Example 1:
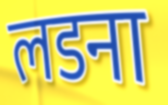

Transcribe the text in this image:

लडना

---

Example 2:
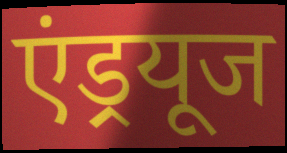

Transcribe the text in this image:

एंड्रयूज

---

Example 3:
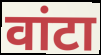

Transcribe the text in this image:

वांटा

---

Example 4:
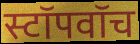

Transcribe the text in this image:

स्टॉपवॉच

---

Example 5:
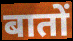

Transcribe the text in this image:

बातों